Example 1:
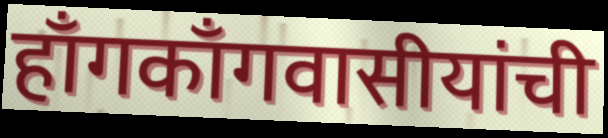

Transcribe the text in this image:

हाँगकाँगवासीयांची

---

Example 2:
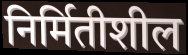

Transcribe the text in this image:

निर्मितीशील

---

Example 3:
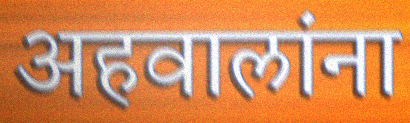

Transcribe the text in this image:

अहवालांना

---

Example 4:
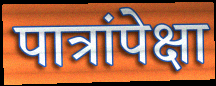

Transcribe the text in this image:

पात्रांपेक्षा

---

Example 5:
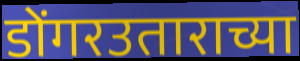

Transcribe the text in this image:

डोंगरउताराच्या